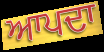
ਆਪਦਾ